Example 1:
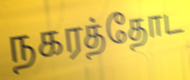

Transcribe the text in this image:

நகரத்தோட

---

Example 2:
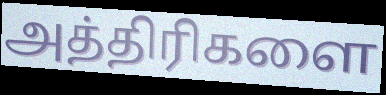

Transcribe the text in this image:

அத்திரிகளை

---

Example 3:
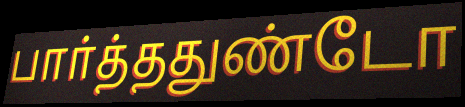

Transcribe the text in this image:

பார்த்ததுண்டோ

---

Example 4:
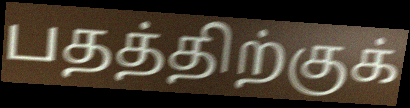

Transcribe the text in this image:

பதத்திற்குக்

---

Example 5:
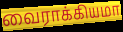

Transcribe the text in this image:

வைராக்கியமா